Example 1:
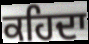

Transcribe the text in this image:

ਕਹਿਦਾ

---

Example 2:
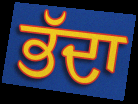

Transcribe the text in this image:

ਭੱਦਾ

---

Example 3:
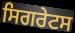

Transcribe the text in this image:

ਸਿਗਰੇਟਸ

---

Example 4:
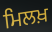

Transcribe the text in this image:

ਮਿਲਖ਼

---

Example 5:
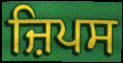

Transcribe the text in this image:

ਜ਼ਿਪਸ